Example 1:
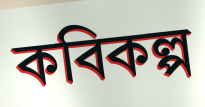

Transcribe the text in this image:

কবিকল্প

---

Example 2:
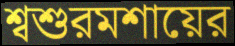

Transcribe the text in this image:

শ্বশুরমশায়ের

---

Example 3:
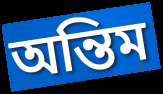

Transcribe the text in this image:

অন্তিম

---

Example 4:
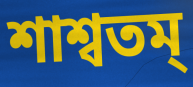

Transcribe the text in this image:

শাশ্বতম্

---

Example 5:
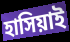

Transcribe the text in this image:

হাসিয়াই